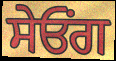
ਸੇਓਂਗ